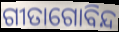
ଗୀତାଗୋବିନ୍ଦ